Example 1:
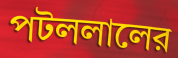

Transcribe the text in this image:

পটললালের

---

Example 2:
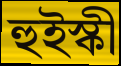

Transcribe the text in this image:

হুইস্কী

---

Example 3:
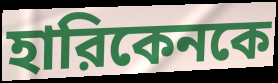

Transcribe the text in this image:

হারিকেনকে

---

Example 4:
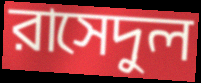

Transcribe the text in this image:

রাসেদুল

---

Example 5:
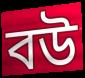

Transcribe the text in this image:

বউ